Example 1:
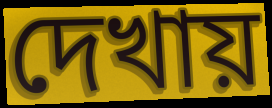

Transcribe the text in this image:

দেখায়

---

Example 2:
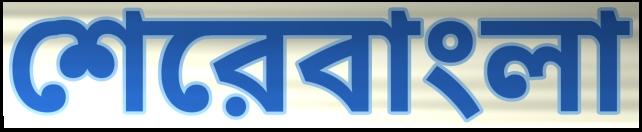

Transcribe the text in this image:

শেরেবাংলা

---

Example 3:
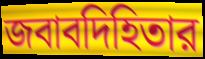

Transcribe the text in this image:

জবাবদিহিতার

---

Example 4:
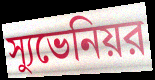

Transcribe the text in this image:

স্যুভেনিয়র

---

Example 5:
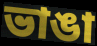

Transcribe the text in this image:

ভাঙা